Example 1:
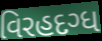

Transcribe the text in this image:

વિરહદગ્ધ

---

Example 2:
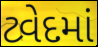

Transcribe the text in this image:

ટ્વેદમાં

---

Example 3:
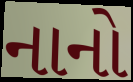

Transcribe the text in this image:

નાનો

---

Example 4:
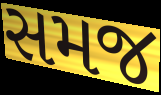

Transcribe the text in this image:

સમજ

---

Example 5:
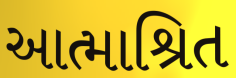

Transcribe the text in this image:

આત્માશ્રિત